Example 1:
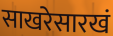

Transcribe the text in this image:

साखरेसारखं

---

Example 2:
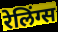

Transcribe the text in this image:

रेलिंग्स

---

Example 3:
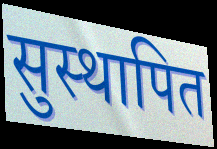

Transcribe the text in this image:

सुस्थापित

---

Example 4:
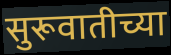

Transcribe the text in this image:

सुरूवातीच्या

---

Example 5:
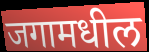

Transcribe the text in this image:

जगामधील